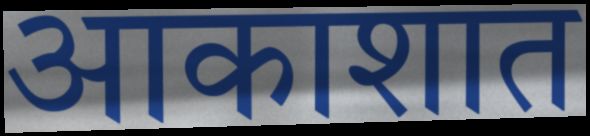
आकाशात